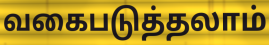
வகைபடுத்தலாம்